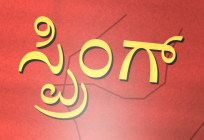
ಸ್ಪ್ರಿಂಗ್